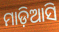
ମାଡ଼ିଆସି